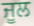
ਜੂਲ